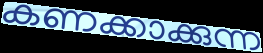
കണക്കാക്കുന്ന